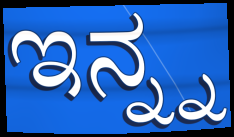
ಇನ್ನ್ನ